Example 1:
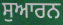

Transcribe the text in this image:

ਸੁਆਰਨ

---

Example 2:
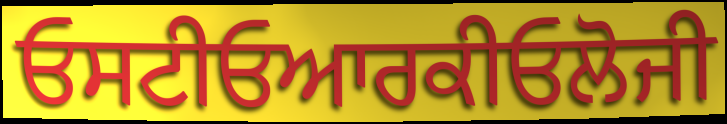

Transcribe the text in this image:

ਓਸਟੀਓਆਰਕੀਓਲੋਜੀ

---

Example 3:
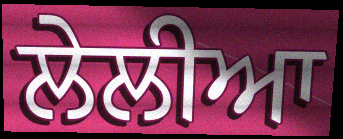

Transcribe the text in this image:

ਲੇਲੀਆ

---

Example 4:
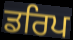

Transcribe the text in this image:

ਡਰਿਪ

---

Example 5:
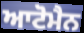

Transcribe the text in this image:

ਆਟੋਮੈਨ